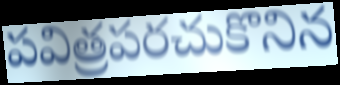
పవిత్రపరచుకొనిన